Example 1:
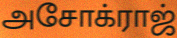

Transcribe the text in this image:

அசோக்ராஜ்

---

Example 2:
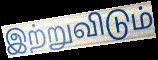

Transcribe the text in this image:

இற்றுவிடும்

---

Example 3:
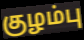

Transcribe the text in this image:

குழம்பு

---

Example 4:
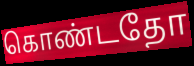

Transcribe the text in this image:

கொண்டதோ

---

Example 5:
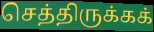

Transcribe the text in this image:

செத்திருக்கக்